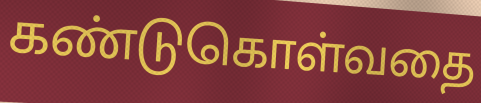
கண்டுகொள்வதை